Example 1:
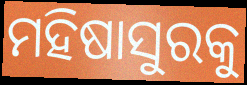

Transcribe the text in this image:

ମହିଷାସୁରକୁ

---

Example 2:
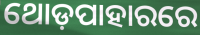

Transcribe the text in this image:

ଥୋଡ଼ପାହାରରେ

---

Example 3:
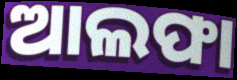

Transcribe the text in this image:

ଆଲଫା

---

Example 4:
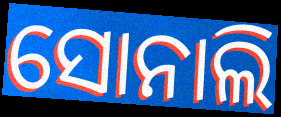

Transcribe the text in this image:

ସୋନାଲି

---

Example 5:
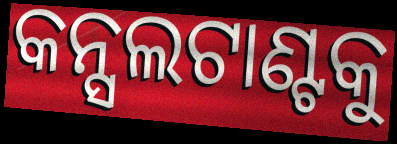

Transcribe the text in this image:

କନ୍ସଲଟାଣ୍ଟକୁ